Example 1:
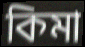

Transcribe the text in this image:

কিমা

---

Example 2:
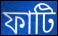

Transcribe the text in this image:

ফাটি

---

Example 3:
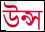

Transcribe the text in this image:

উন্স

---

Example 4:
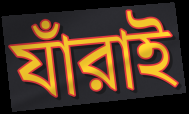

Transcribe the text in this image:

যাঁরাই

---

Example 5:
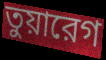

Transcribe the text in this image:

তুয়ারেগ